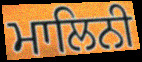
ਮਾਲਿਨੀ